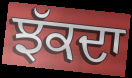
ਝੱਕਦਾ